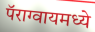
पॅराग्वायमध्ये